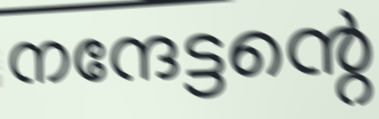
നന്ദേട്ടന്റെ